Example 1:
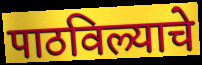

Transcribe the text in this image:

पाठविल्याचे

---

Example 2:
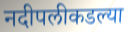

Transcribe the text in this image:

नदीपलीकडल्या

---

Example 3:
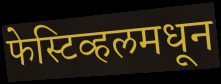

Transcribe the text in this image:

फेस्टिव्हलमधून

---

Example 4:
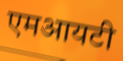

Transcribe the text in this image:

एमआयटी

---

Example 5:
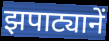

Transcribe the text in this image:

झपाट्यानें